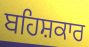
ਬਹਿਸ਼ਕਾਰ